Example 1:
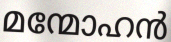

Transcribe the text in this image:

മന്മോഹൻ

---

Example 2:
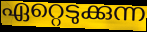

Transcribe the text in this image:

ഏറ്റെടുക്കുന്ന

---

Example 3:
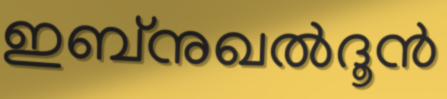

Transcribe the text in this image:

ഇബ്നുഖൽദൂൻ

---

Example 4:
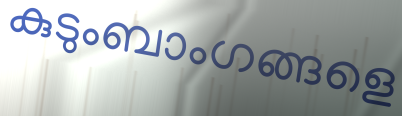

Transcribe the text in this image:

കുടുംബാംഗങ്ങളെ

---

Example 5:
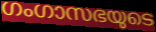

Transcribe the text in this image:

ഗംഗാസഭയുടെ